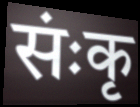
संःकृ